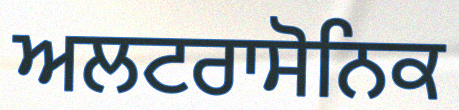
ਅਲਟਰਾਸੋਨਿਕ